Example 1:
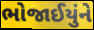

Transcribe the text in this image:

ભોજાઈયુંને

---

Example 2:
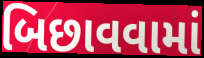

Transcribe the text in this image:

બિછાવવામાં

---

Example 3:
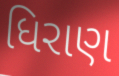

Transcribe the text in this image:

ધિરાણ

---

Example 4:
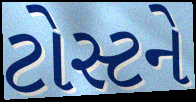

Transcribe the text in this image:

ટોસ્ટને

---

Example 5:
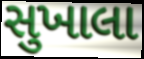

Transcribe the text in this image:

સુખાલા